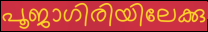
പൂജാഗിരിയിലേക്കു